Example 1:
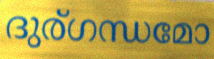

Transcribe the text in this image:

ദുര്ഗന്ധമോ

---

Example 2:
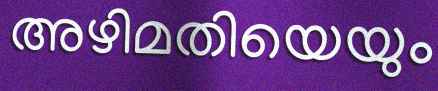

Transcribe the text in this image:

അഴിമതിയെയും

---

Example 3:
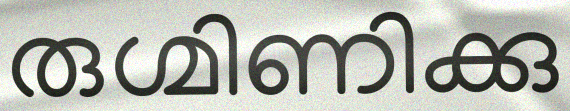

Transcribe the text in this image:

രുഗ്മിണിക്കു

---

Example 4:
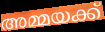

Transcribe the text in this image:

അമ്മയക്ക്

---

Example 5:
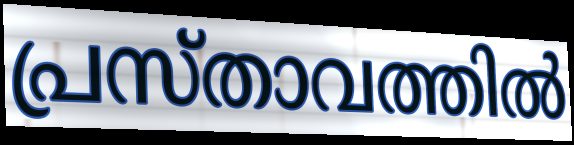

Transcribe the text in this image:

പ്രസ്താവത്തിൽ